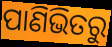
ପାଣିଭିତରୁ